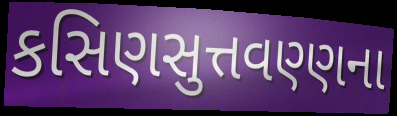
કસિણસુત્તવણ્ણના